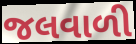
જલવાળી